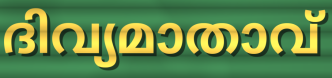
ദിവ്യമാതാവ്